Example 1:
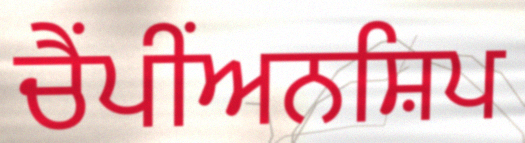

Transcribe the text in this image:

ਚੈਂਪੀਂਅਨਸ਼ਿਪ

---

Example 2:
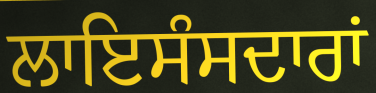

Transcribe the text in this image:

ਲਾਇਸੰਸਦਾਰਾਂ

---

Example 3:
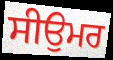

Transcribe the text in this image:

ਸੀਉਮਰ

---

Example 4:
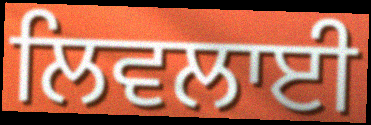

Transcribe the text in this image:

ਲਿਵਲਾਈ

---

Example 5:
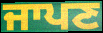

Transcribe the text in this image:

ਜਾਪਣ